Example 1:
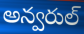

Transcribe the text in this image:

అన్వరుల్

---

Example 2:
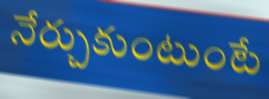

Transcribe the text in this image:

నేర్చుకుంటుంటే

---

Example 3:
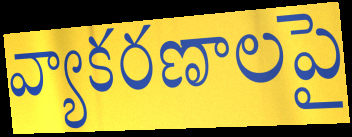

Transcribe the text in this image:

వ్యాకరణాలపై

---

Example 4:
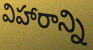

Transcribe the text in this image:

విహారాన్ని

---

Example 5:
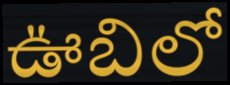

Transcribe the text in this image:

ఊబిలో